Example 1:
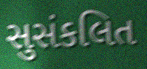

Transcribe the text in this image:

સુસંકલિત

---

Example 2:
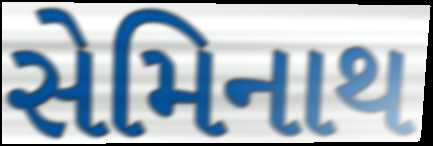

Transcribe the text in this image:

સેમિનાથ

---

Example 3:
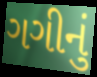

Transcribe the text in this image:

ગગીનું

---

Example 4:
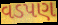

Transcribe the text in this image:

વડપણ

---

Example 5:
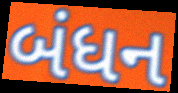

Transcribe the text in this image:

બંધન